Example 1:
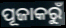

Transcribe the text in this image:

ପୂଜାକରୁଁ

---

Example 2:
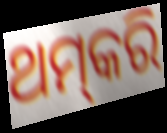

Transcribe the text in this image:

ଥମ୍‌କରି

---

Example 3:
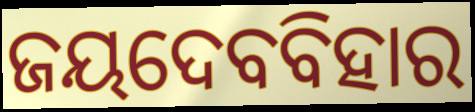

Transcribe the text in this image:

ଜୟଦେବବିହାର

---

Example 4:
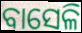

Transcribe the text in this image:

ବାସେଳି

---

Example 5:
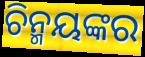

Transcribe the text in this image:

ଚିନ୍ମୟଙ୍କର